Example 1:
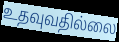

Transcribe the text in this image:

உதவுவதில்லை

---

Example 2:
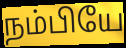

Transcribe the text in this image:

நம்பியே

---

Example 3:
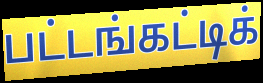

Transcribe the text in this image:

பட்டங்கட்டிக்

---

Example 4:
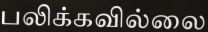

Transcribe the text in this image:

பலிக்கவில்லை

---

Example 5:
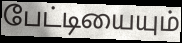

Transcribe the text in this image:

பேட்டியையும்